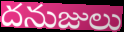
దనుజులు